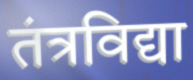
तंत्रविद्या